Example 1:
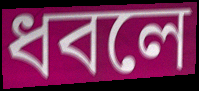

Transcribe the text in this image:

ধবলে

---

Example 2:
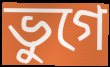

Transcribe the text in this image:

ভুগে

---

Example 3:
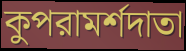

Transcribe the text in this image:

কুপরামর্শদাতা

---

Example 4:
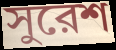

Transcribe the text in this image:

সুরেশ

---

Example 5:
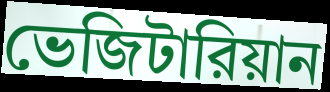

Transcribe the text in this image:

ভেজিটারিয়ান